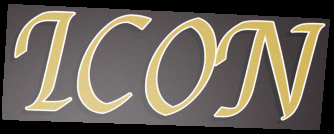
ICON